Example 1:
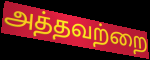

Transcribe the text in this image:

அத்தவற்றை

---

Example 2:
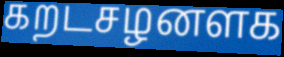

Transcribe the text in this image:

கறடசழனளக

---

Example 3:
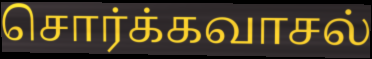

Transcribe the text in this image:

சொர்க்கவாசல்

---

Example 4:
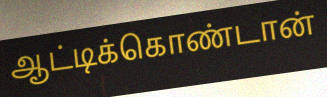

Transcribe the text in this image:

ஆட்டிக்கொண்டான்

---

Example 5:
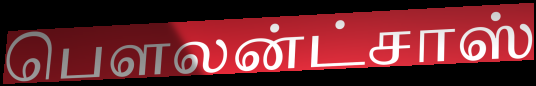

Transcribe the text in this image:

பௌலன்ட்சாஸ்